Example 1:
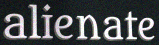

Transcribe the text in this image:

alienate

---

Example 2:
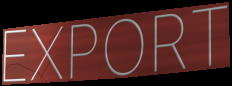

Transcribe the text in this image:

EXPORT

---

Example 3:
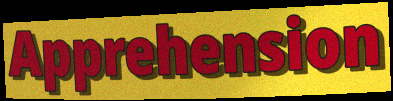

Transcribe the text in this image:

Apprehension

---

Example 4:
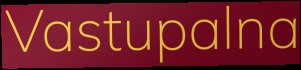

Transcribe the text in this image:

Vastupalna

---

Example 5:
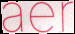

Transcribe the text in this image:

aer